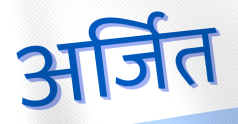
अर्जित